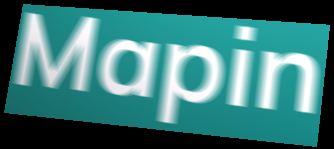
Mapin